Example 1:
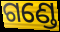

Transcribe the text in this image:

ଗଣ୍ଡେ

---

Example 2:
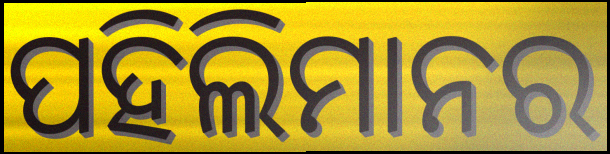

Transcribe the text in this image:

ପହିଲିମାନର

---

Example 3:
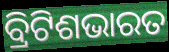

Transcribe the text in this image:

ବ୍ରିଟିଶଭାରତ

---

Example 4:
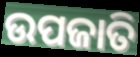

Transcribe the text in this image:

ଉପଜାତି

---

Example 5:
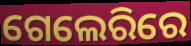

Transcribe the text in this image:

ଗେଲେରିରେ